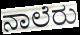
ನಾಲೆರು